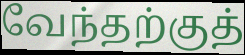
வேந்தற்குத்